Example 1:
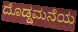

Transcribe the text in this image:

ದೊಡ್ಡಮನೆಯ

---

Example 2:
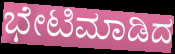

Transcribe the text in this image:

ಭೇಟಿಮಾಡಿದ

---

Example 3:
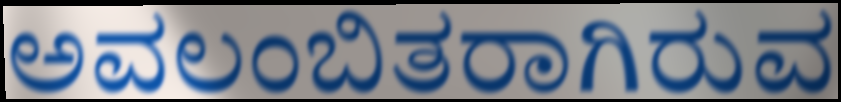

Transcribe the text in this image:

ಅವಲಂಬಿತರಾಗಿರುವ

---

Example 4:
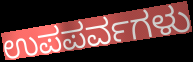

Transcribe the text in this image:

ಉಪಪರ್ವಗಳು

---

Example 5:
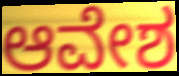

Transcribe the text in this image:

ಆವೇಶ